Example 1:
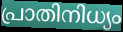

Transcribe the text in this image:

പ്രാതിനിധ്യം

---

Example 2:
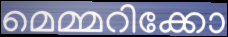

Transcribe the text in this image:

മെമ്മറിക്കോ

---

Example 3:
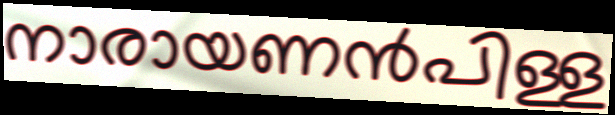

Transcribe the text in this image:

നാരായണൻപിള്ള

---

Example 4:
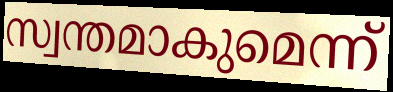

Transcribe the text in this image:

സ്വന്തമാകുമെന്ന്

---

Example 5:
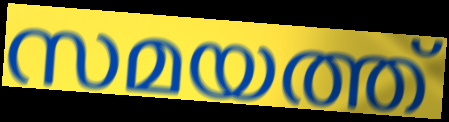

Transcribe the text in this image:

സമയത്ത്